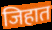
जिहात